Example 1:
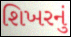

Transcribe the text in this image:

શિખરનું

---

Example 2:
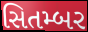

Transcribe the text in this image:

સિતમ્બર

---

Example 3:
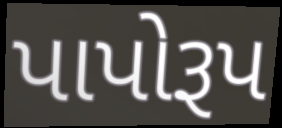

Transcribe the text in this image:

પાપોરૂપ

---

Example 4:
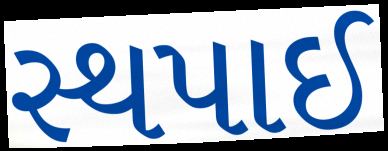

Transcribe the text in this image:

સ્થપાઈ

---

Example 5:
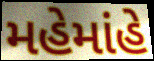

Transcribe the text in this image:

મહેમાંહે